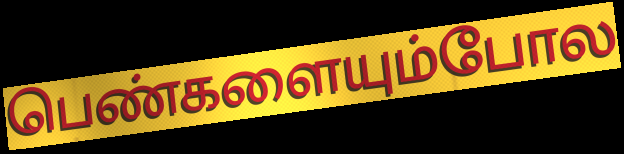
பெண்களையும்போல